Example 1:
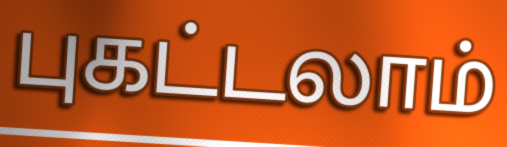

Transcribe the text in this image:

புகட்டலாம்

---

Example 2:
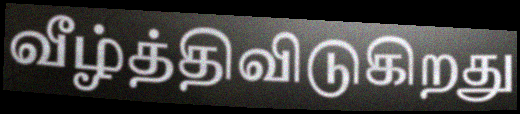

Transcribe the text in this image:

வீழ்த்திவிடுகிறது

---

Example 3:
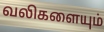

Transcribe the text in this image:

வலிகளையும்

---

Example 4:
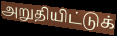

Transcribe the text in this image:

அறுதியிட்டுக்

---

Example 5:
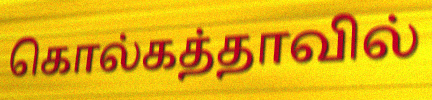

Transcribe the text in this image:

கொல்கத்தாவில்